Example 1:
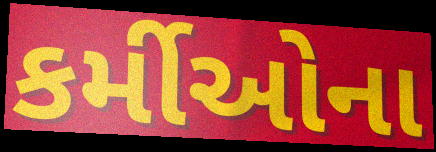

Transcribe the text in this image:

કર્મીઓના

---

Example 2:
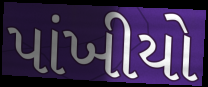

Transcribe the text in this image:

પાંખીયો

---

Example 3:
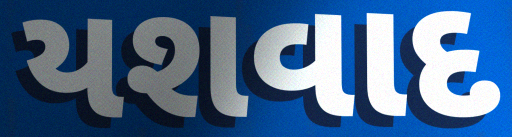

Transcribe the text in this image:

યશવાદ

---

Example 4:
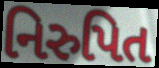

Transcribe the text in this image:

નિરુપિત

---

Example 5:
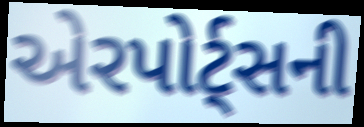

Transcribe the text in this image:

એરપોર્ટ્સની